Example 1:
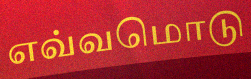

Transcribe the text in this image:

எவ்வமொடு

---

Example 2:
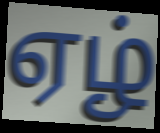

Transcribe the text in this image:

ஏழ்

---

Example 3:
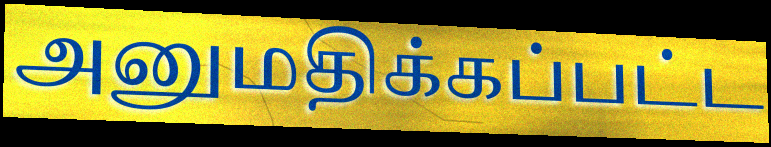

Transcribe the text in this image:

அனுமதிக்கப்பட்ட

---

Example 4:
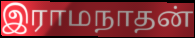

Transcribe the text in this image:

இராமநாதன்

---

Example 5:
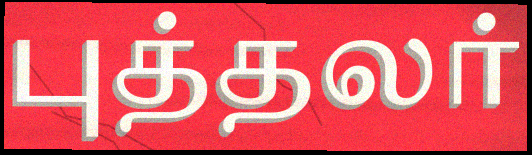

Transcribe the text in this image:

புத்தலர்